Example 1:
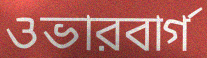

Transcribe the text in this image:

ওভারবার্গ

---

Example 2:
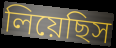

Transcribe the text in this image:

লিয়েছিস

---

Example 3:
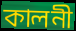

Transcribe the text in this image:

কালনী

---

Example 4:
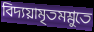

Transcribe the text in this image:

বিদ্যয়ামৃতমশ্নুতে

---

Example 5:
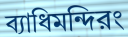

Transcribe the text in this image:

ব্যাধিমন্দিরং